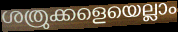
ശത്രുക്കളെയെല്ലാം